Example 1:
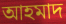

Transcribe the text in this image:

আহমাদ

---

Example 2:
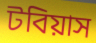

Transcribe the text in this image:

টবিয়াস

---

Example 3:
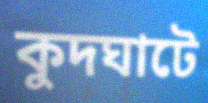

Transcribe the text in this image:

কুদঘাটে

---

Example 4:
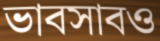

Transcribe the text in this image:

ভাবসাবও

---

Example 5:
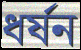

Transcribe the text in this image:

ধর্ষন